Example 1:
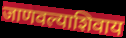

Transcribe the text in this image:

जाणवल्याशिवाय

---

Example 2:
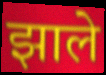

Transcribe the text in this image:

झाले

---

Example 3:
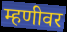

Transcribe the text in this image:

म्हणीवर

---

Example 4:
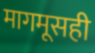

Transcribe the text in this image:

मागमूसही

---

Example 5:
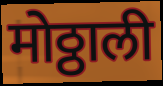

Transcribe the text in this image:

मोठ्ठाली